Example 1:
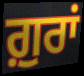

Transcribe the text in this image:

ਗ਼ੁਰਾਂ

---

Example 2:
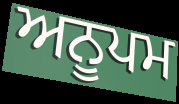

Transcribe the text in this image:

ਅਨੂਪਮ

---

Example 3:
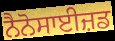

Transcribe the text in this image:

ਨੈਨੋਸਾਈਜ਼ਡ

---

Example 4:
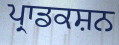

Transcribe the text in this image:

ਪ੍ਰਾਡਕਸ਼ਨ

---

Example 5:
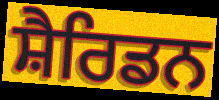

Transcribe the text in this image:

ਸ਼ੈਰਿਡਨ